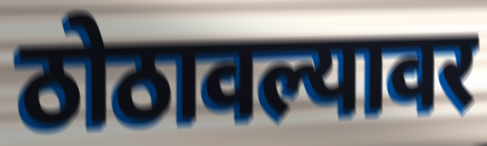
ठोठावल्यावर